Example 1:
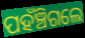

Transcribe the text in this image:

ପହଁଞ୍ଚିଗଲେ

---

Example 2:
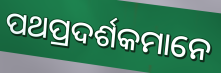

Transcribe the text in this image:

ପଥପ୍ରଦର୍ଶକମାନେ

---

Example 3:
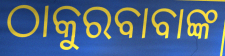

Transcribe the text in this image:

ଠାକୁରବାବାଙ୍କ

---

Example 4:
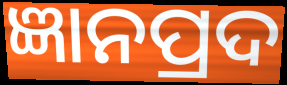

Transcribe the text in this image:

ଜ୍ଞାନପ୍ରଦ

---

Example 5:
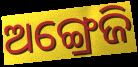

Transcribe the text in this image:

ଅଙ୍ଗ୍ରେଜି